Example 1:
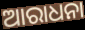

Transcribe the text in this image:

ଆରାଧନା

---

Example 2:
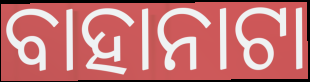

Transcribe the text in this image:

ବାହାନାଟା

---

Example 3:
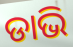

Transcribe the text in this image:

ଡାଭି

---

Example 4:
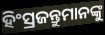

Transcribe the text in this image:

ହିଂସ୍ରଜନ୍ତୁମାନଙ୍କୁ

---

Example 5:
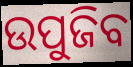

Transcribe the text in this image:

ଉପୁଜିବ